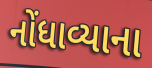
નોંધાવ્યાના